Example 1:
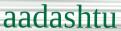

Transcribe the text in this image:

aadashtu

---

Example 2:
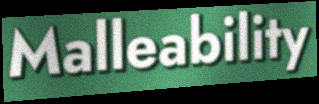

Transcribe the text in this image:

Malleability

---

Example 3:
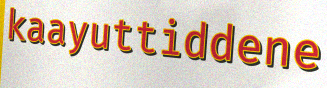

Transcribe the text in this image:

kaayuttiddene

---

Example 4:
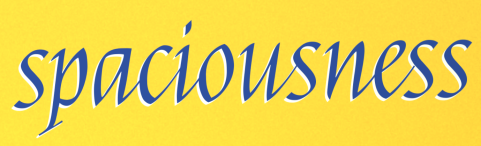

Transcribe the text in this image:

spaciousness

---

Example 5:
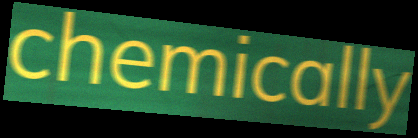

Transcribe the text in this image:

chemically